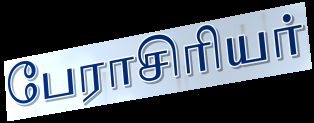
பேராசிரியர்